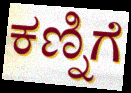
ಕಣ್ನಿಗೆ